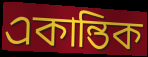
একান্তিক